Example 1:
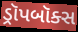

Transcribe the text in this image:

ડ્રૉપબૉક્સ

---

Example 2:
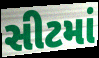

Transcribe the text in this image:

સીટમાં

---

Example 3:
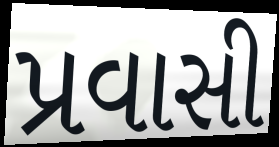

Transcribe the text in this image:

પ્રવાસી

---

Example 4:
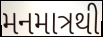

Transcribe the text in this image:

મનમાત્રથી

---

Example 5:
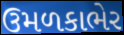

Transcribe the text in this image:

ઉમળકાભેર